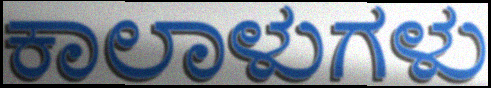
ಕಾಲಾಳುಗಳು